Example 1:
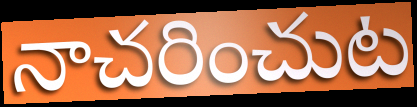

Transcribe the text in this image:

నాచరించుట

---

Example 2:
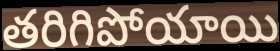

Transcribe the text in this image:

తరిగిపోయాయి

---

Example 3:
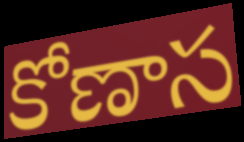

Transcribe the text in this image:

కోణాస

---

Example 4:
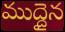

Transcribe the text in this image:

ముద్దైన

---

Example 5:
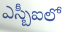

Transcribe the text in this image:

ఎస్బీఐలో